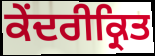
ਕੇਂਦਰੀਕ੍ਰਿਤ